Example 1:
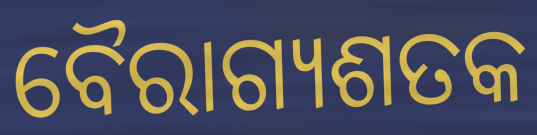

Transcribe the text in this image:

ବୈରାଗ୍ୟଶତକ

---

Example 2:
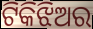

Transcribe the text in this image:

ଟିକିଝିଅର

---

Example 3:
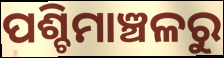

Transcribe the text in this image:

ପଶ୍ଚିମାଞ୍ଚଳରୁ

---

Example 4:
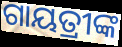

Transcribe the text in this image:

ଗାୟତ୍ରୀଙ୍କ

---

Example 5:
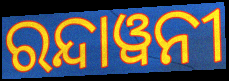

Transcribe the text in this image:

ରନ୍ଦାୱନୀ